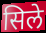
सिले